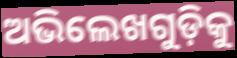
ଅଭିଲେଖଗୁଡ଼ିକୁ